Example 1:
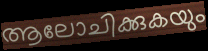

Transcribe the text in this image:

ആലോചിക്കുകയും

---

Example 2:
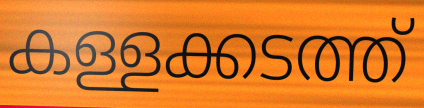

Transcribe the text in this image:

കള്ളക്കടത്ത്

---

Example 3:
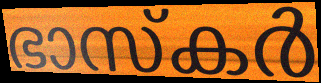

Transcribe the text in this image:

ഭാസ്‌കർ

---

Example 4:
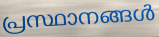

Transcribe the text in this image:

പ്രസ്ഥാനങ്ങൾ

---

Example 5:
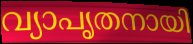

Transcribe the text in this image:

വ്യാപൃതനായി